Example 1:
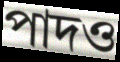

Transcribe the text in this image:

পাদও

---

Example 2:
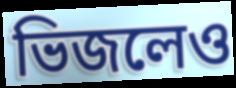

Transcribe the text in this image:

ভিজলেও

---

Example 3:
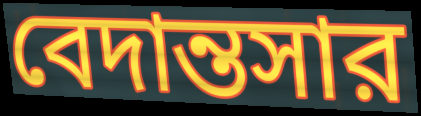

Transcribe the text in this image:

বেদান্তসার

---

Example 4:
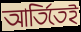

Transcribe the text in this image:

আর্তিতেই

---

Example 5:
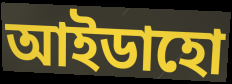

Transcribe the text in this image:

আইডাহো